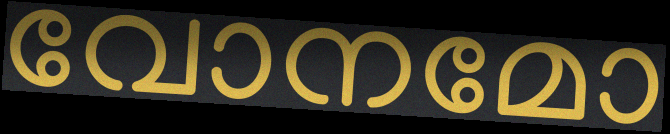
വോനമോ